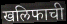
खलिफाची